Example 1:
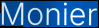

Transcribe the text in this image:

Monier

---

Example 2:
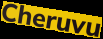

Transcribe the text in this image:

Cheruvu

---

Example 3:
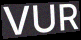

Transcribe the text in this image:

VUR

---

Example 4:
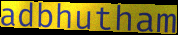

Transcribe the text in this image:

adbhutham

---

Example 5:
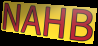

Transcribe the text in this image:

NAHB